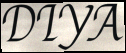
DIYA